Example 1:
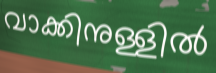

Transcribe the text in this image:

വാക്കിനുള്ളിൽ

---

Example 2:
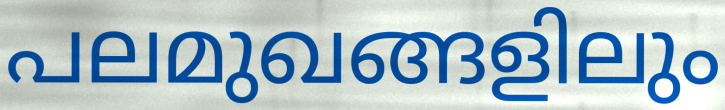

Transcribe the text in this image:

പലമുഖങ്ങളിലും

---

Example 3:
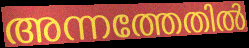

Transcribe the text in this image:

അന്നത്തേതിൽ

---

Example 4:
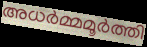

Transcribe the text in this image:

അധർമ്മമൂർത്തി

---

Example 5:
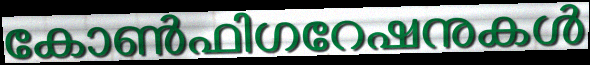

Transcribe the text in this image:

കോൺഫിഗറേഷനുകൾ